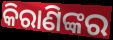
କିରାଣିଙ୍କର